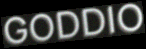
GODDIO